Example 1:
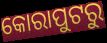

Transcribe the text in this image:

କୋରାପୁଟରୁ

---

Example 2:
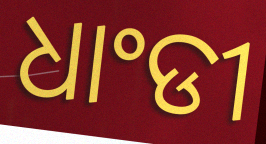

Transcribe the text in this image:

ଧାଂଡୀ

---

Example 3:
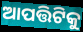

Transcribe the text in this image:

ଆପତ୍ତିଟିକୁ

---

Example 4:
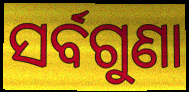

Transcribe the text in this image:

ସର୍ବଗୁଣା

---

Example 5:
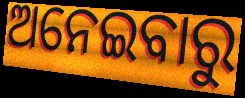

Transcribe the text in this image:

ଅନେଇବାରୁ